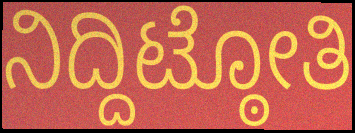
ನಿದ್ದಿಟ್ಠೋತಿ